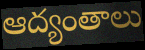
ఆద్యంతాలు